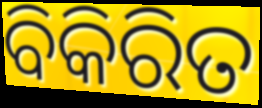
ବିକିରିତ